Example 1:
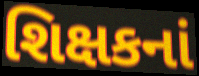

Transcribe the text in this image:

શિક્ષકનાં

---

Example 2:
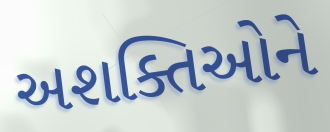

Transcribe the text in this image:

અશક્તિઓને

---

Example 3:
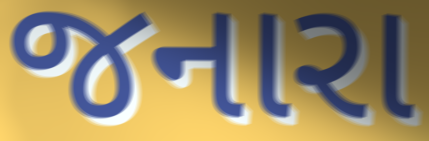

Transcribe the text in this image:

જનારા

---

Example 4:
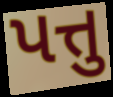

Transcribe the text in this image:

પત્તુ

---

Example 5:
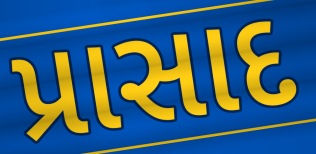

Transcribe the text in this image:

પ્રાસાદ